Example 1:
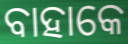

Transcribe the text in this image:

ବାହାକେ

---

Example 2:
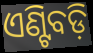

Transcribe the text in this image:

ଏଣ୍ଟିବଡ଼ି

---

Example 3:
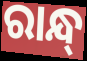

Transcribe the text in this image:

ରାନ୍ଧ୍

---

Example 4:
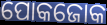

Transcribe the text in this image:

ପୋକଜୋକ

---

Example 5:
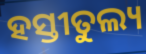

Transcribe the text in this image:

ହସ୍ତୀତୁଲ୍ୟ